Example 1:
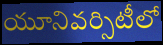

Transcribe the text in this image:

యూనివర్సిటీలో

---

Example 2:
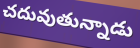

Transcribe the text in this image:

చదువుతున్నాడు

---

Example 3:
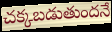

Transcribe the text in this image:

చక్కబడుతుందనే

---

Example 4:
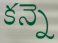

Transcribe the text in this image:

కన్నె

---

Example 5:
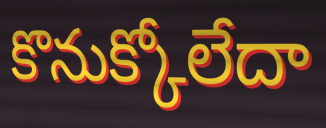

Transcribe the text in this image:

కొనుక్కోలేదా